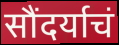
सौंदर्याचं